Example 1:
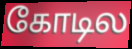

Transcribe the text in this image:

கோடில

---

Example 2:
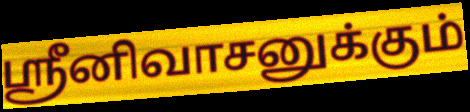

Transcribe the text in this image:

ஸ்ரீனிவாசனுக்கும்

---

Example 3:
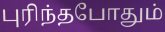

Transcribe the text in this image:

புரிந்தபோதும்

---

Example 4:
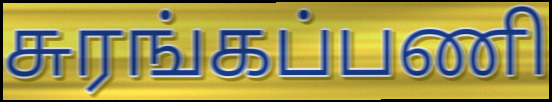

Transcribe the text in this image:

சுரங்கப்பணி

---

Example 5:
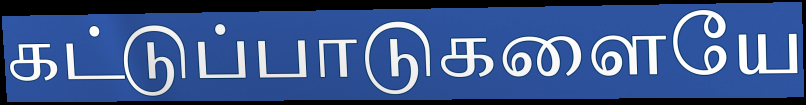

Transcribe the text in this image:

கட்டுப்பாடுகளையே